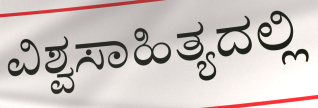
ವಿಶ್ವಸಾಹಿತ್ಯದಲ್ಲಿ